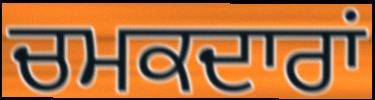
ਚਮਕਦਾਰਾਂ